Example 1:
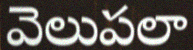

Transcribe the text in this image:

వెలుపలా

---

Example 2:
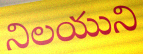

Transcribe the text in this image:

నిలయుని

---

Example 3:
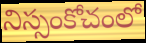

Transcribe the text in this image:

నిస్సంకోచంలో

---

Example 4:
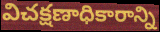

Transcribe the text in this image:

విచక్షణాధికారాన్ని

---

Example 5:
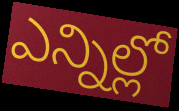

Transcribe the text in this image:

ఎన్నిల్లో